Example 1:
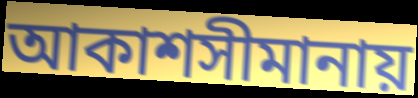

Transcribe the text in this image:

আকাশসীমানায়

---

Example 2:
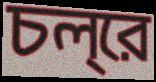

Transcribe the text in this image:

চল্‌রে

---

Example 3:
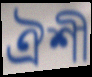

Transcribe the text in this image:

ঐশী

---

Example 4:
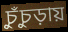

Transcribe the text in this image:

চুঁচুড়ায়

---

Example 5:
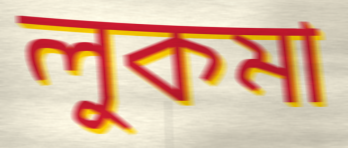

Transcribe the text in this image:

লুকমা